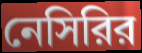
নেসিরির